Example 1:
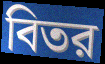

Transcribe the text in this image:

বিতর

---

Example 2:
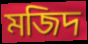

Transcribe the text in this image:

মজিদ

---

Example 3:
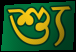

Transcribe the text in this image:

শ্যু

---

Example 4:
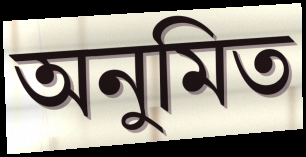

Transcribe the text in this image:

অনুমিত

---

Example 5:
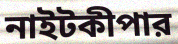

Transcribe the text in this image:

নাইটকীপার